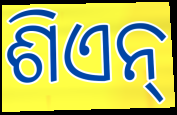
ଶିଏନ୍